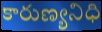
కారుణ్యనిధి